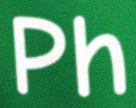
Ph